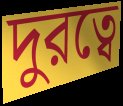
দুরত্বে